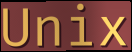
Unix